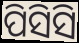
ପିସିସି